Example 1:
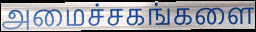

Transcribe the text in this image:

அமைச்சகங்களை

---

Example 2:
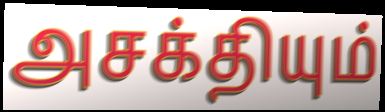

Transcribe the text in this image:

அசக்தியும்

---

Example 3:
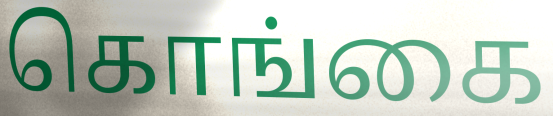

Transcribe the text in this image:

கொங்கை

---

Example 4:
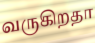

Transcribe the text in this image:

வருகிறதா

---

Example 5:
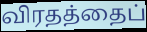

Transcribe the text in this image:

விரதத்தைப்